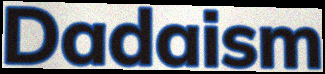
Dadaism